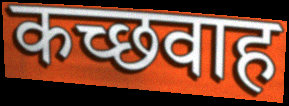
कच्छवाह